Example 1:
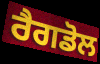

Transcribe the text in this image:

ਰੈਗਡੋਲ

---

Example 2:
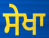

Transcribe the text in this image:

ਸੇਖਾ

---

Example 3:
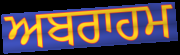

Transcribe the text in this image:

ਅਬਰਾਹਮ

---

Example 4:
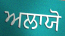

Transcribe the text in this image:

ਅਲਾਯੋ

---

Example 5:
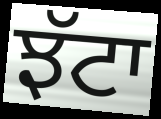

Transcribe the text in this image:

ਝੱਟਾ